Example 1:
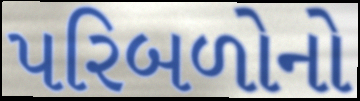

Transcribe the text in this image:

પરિબળોનો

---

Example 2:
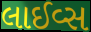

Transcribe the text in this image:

લાઈવ્સ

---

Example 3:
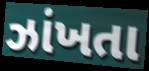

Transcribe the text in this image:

ઝાંખતા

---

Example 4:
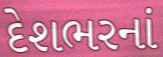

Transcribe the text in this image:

દેશભરનાં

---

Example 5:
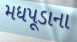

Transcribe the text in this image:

મધપૂડાના